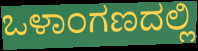
ಒಳಾಂಗಣದಲ್ಲಿ